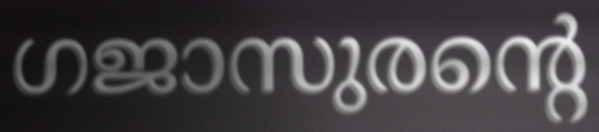
ഗജാസുരന്റെ